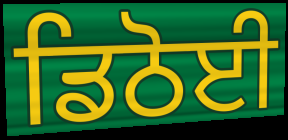
ਡਿਠੋਈ